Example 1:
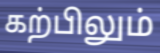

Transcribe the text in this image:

கற்பிலும்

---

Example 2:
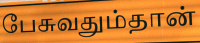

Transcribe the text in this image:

பேசுவதும்தான்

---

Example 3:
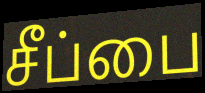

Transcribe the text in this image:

சீப்பை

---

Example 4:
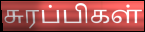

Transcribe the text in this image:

சுரப்பிகள்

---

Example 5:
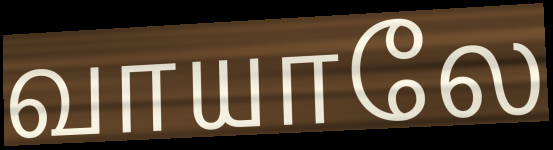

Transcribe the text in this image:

வாயாலே